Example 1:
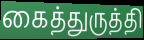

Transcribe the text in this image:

கைத்துருத்தி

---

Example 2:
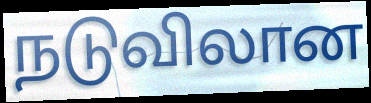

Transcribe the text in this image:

நடுவிலான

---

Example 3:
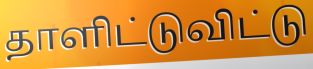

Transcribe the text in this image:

தாளிட்டுவிட்டு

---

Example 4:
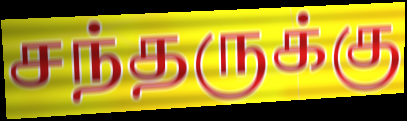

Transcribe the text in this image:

சந்தருக்கு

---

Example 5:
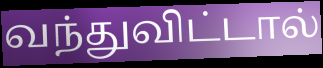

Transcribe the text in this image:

வந்துவிட்டால்